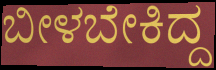
ಬೀಳಬೇಕಿದ್ದ